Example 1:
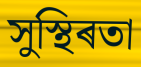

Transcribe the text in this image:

সুস্থিৰতা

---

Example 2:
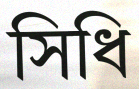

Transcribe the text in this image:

সিধি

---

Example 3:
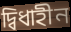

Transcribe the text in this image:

দ্বিধাহীন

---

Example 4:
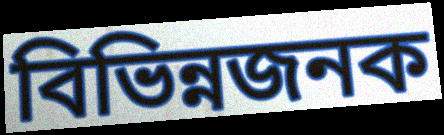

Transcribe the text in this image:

বিভিন্নজনক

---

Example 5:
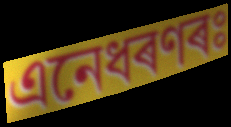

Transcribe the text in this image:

এনেধৰণৰঃ